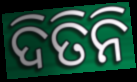
ଦିତିନି